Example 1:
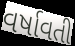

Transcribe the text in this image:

વર્ષાવતી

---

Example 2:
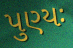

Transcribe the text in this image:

પુણ્યઃ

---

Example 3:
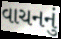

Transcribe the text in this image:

વાચનનું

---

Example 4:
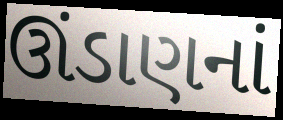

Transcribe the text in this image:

ઊંડાણનાં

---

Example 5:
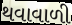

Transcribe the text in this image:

થવાવાળી